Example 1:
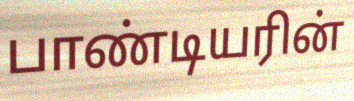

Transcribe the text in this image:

பாண்டியரின்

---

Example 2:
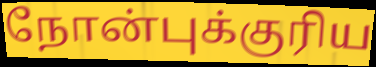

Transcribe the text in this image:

நோன்புக்குரிய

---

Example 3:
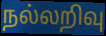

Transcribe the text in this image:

நல்லறிவு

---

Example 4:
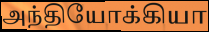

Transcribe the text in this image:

அந்தியோக்கியா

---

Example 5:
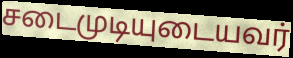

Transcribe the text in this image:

சடைமுடியுடையவர்